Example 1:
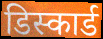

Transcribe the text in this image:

डिस्कार्ड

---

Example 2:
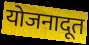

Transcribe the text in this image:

योजनादूत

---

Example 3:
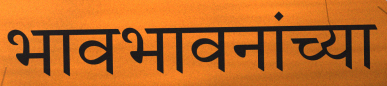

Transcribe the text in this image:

भावभावनांच्या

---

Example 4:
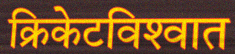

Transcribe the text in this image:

क्रिकेटविश्‍वात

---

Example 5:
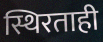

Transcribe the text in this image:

स्थिरताही